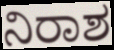
ನಿರಾಶ